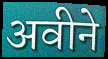
अवीने